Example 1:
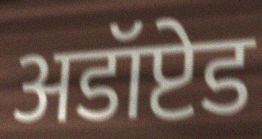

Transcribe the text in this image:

अडॉप्टेड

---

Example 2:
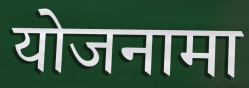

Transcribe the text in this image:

योजनामा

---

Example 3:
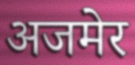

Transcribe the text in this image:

अजमेर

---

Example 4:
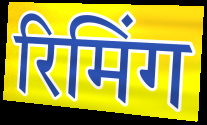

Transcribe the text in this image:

रिमिंग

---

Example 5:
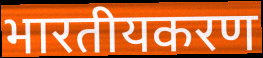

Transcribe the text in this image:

भारतीयकरण